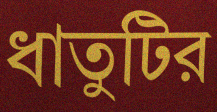
ধাতুটির